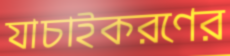
যাচাইকরণের